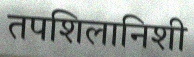
तपशिलानिशी